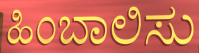
ಹಿಂಬಾಲಿಸು